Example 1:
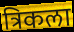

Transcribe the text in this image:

त्रिकला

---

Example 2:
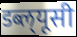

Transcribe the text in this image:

डब्ल्यूसी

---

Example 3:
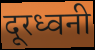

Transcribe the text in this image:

दूरध्वनी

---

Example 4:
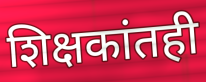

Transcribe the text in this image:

शिक्षकांतही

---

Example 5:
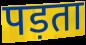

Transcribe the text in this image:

पड़ता